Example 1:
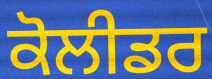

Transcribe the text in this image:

ਕੋਲੀਡਰ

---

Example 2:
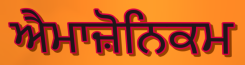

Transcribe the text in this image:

ਐਮਾਜ਼ੋਨਿਕਮ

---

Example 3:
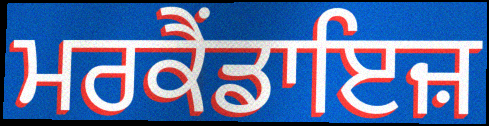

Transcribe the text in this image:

ਮਰਕੈਂਡਾਇਜ਼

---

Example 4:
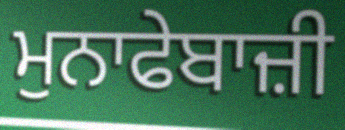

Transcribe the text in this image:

ਮੁਨਾਫੇਬਾਜ਼ੀ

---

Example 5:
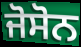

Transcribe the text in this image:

ਜੋਸੋਨ